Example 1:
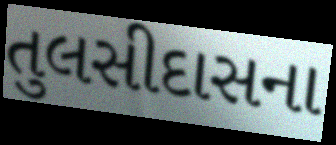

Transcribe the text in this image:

તુલસીદાસના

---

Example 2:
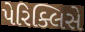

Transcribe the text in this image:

પેરિક્લિસે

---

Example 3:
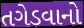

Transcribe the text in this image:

તગેડવાનો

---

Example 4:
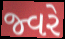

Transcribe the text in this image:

જ્વરે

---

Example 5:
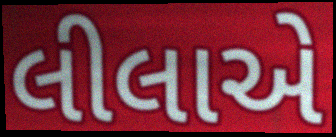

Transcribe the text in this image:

લીલાએ